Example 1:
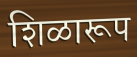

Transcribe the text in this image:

शिळारूप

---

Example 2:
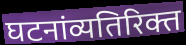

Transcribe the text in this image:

घटनांव्यतिरिक्त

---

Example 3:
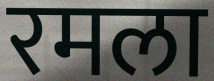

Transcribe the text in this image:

रमला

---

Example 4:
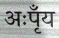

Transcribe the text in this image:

अःपृँय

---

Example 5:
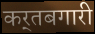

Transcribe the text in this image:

कर्तबगारी